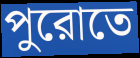
পুরোতে